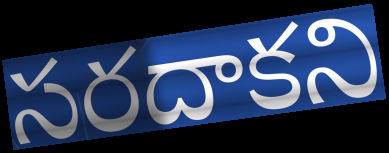
సరదాకని